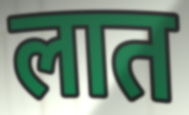
लात